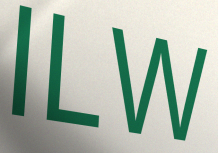
ILW